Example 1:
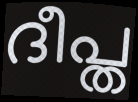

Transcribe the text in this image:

ദീപ്ത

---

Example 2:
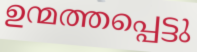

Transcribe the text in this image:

ഉന്മത്തപ്പെട്ടു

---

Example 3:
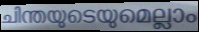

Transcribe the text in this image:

ചിന്തയുടെയുമെല്ലാം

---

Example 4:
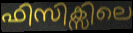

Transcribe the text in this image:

ഫിസിക്സിലെ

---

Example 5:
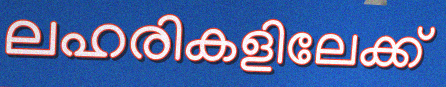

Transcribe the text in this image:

ലഹരികളിലേക്ക്